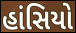
હાંસિયો